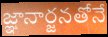
జ్ఞానార్జనతోనే